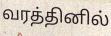
வரத்தினில்